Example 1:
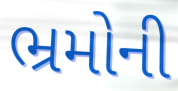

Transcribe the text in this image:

ભ્રમોની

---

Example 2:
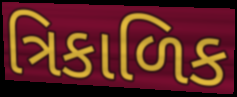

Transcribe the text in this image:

ત્રિકાળિક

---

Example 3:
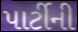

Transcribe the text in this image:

પાર્ટીની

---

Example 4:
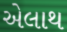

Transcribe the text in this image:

એલાથ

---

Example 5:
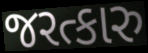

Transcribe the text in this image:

જરત્કારુ